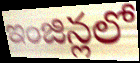
ఇంజిన్లలో